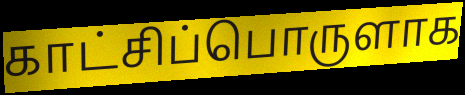
காட்சிப்பொருளாக